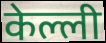
केल्ली